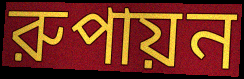
ৰুপায়ন